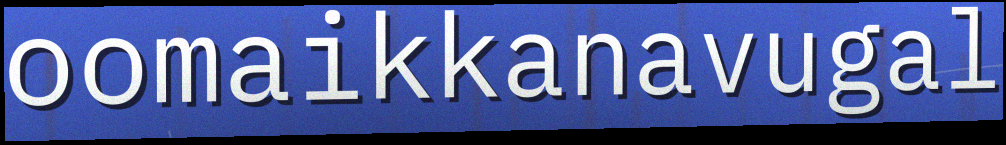
oomaikkanavugal